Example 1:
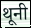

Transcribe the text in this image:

थूनी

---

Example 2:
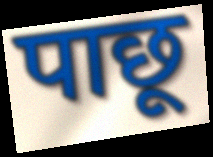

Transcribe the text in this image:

पाछू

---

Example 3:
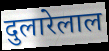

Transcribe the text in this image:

दुलारेलाल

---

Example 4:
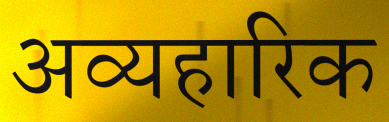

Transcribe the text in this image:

अव्यहारिक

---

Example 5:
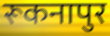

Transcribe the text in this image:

रूकनापुर